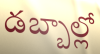
డబ్బాల్లో